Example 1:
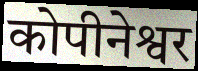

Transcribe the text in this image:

कोपीनेश्वर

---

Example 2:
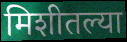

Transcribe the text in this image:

मिशीतल्या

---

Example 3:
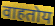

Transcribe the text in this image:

वाहतोय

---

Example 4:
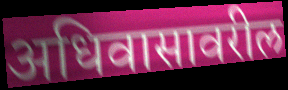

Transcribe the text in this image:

अधिवासावरील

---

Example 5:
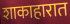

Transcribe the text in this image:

शाकाहारात